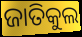
ଜାତିକୁଲ